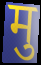
मु